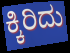
ಕ್ಕಿರಿದು